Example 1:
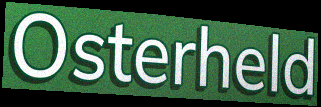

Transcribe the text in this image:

Osterheld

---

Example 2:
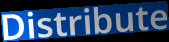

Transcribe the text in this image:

Distribute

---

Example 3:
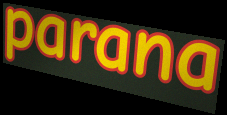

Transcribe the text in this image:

parana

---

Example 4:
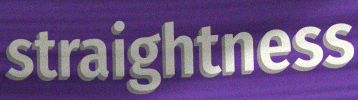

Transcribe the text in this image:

straightness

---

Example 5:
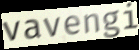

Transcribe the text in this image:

vavengi